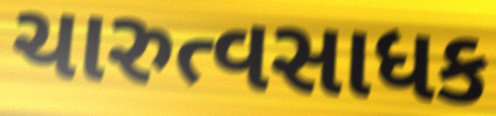
ચારુત્વસાધક